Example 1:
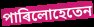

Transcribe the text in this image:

পাৰিলোহেতেন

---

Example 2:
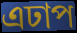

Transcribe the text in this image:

এঢাপ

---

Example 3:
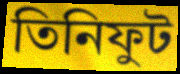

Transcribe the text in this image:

তিনিফুট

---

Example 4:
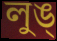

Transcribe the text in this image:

লুঙ্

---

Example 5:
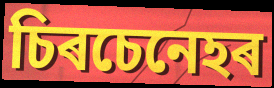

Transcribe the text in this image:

চিৰচেনেহৰ